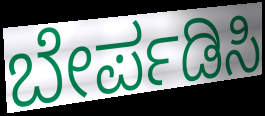
ಬೇರ್ಪಡಿಸಿ